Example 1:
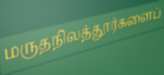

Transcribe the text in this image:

மருதநிலத்தூர்களைப்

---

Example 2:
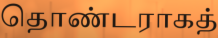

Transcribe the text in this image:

தொண்டராகத்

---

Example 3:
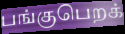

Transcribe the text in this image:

பங்குபெறக்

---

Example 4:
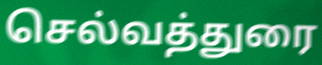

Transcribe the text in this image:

செல்வத்துரை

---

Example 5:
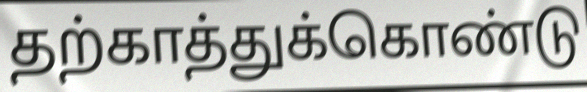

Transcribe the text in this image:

தற்காத்துக்கொண்டு